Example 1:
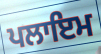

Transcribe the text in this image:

ਪਲਾਇਮ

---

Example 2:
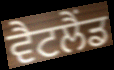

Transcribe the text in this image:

ਵੈਟਲੈਂਡ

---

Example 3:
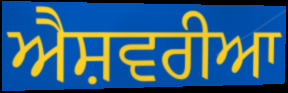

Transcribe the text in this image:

ਐਸ਼ਵਰੀਆ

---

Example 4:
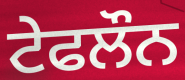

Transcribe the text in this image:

ਟੇਫਲੌਨ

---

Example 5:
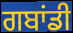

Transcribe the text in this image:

ਗਬਾਂਡੀ